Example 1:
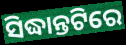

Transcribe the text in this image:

ସିଦ୍ଧାନ୍ତଟିରେ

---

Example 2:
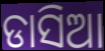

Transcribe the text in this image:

ଡାସିଆ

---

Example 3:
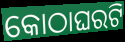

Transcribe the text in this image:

କୋଠାଘରଟି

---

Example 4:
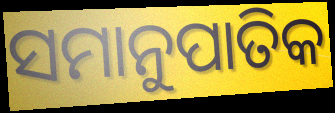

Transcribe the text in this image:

ସମାନୁପାତିକ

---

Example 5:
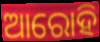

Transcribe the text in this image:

ଆରୋହି